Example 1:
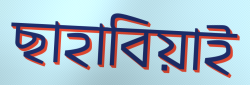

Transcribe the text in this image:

ছাহাবিয়াই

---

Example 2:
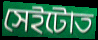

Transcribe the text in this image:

সেইটোত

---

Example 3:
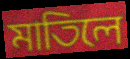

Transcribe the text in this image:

মাতিলে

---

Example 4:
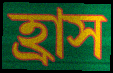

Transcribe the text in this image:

হ্ৰাস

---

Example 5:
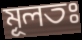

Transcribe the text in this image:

মূলতঃ